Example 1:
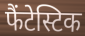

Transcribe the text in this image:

फैंटेस्टिक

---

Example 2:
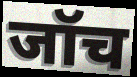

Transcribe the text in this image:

जॉच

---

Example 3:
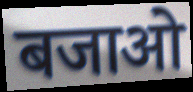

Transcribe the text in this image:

बजाओ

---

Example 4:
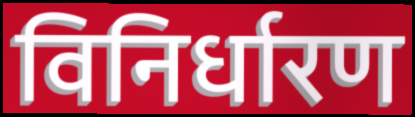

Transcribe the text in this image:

विनिर्धारण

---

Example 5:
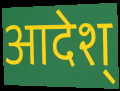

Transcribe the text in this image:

आदेश्